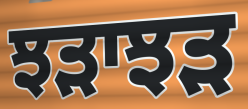
ਝੜਾਝੜ